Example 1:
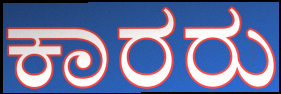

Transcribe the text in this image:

ಕಾರರು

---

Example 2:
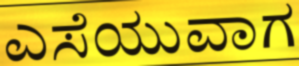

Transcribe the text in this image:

ಎಸೆಯುವಾಗ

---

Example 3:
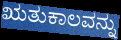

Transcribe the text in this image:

ಋತುಕಾಲವನ್ನು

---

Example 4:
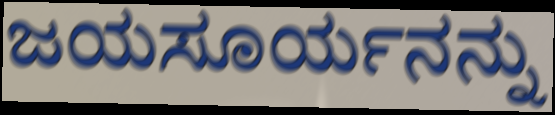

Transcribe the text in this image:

ಜಯಸೂರ್ಯನನ್ನು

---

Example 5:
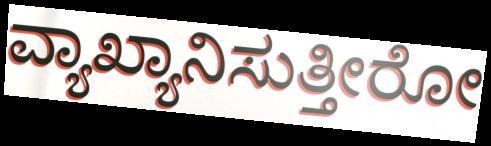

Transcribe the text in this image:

ವ್ಯಾಖ್ಯಾನಿಸುತ್ತೀರೋ